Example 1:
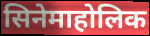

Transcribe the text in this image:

सिनेमाहोलिक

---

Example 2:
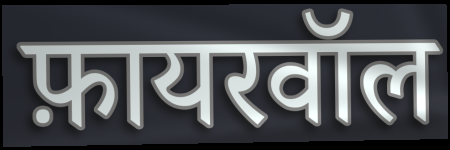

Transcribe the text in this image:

फ़ायरवॉल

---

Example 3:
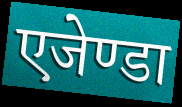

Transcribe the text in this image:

एजेण्डा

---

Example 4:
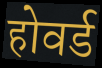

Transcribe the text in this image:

होवर्ड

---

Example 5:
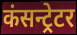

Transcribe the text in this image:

कंसन्ट्रेटर